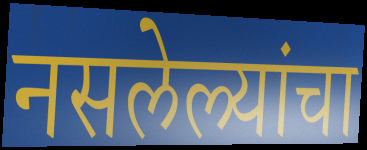
नसलेल्यांचा